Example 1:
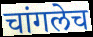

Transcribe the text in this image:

चांगलेच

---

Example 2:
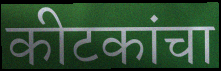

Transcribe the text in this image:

कीटकांचा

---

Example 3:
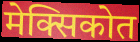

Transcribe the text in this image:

मेक्सिकोत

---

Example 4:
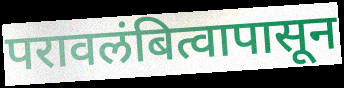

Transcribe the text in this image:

परावलंबित्वापासून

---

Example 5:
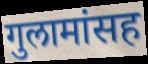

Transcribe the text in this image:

गुलामांसह